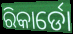
ରିକାର୍ଡୋ